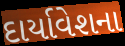
દાર્યાવેશના